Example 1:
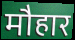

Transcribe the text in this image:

मौहार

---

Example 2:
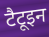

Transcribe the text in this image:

टैटूइन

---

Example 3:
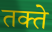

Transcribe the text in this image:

तक्ते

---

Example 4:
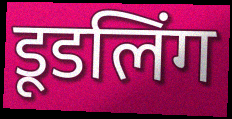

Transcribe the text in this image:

डूडलिंग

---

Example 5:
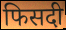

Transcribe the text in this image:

फिसदी